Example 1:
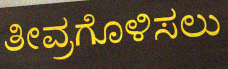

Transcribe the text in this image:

ತೀವ್ರಗೊಳಿಸಲು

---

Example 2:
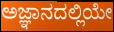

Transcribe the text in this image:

ಅಜ್ಞಾನದಲ್ಲಿಯೇ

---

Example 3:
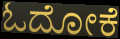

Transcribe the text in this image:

ಓದೋಕೆ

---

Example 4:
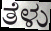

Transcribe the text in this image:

ತೆಳು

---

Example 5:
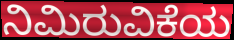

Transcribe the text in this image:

ನಿಮಿರುವಿಕೆಯ